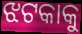
ଝଟକାକୁ